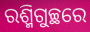
ରଶ୍ମିଗୁଚ୍ଛରେ